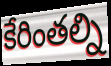
కేరింతల్ని